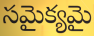
సమైక్యమై